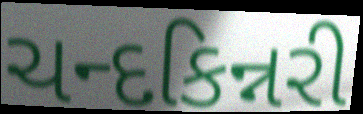
ચન્દકિન્નરી